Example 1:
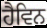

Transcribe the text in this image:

ਹੈਵਿਨ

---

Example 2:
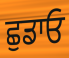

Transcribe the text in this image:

ਛੁਡਾਓ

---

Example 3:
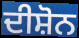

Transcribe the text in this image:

ਦੀਸ਼ੋਨ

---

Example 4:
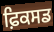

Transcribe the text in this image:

ਫ਼ਿਕਸਡ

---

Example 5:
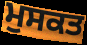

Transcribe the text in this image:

ਮੁਸਕਤ